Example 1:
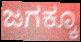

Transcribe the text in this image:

ಜಗಕ್ಕೂ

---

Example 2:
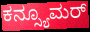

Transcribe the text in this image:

ಕನ್ಸ್ಯೂಮರ್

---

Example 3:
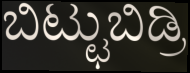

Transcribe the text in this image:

ಬಿಟ್ಟುಬಿಡ್ರಿ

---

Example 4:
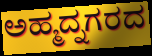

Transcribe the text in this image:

ಅಹ್ಮದ್ನಗರದ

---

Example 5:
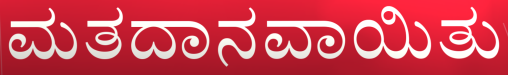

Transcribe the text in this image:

ಮತದಾನವಾಯಿತು